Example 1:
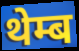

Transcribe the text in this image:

थेम्ब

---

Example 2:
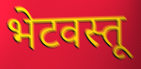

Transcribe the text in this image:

भेटवस्तू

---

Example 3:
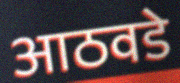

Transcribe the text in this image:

आठवडे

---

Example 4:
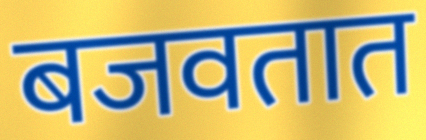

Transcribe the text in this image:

बजवतात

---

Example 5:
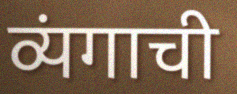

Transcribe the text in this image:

व्यंगाची